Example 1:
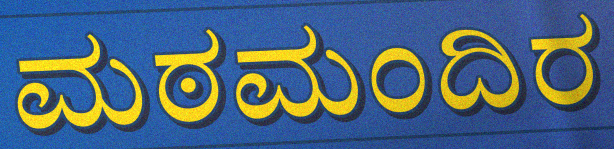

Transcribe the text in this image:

ಮಠಮಂದಿರ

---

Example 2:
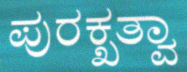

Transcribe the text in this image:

ಪುರಕ್ಖತ್ವಾ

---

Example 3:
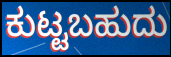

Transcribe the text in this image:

ಕುಟ್ಟಬಹುದು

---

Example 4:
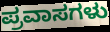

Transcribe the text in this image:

ಪ್ರವಾಸಗಳು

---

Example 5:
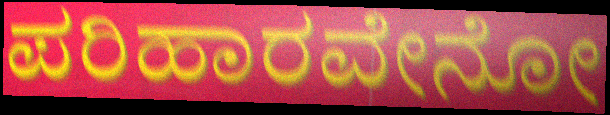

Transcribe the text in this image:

ಪರಿಹಾರವೇನೋ